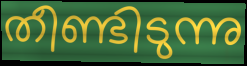
തീണ്ടിടുന്നു